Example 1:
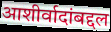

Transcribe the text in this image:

आशीर्वादांबद्दल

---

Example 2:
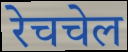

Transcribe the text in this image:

रेचचेल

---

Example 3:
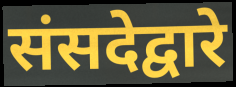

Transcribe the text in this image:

संसदेद्वारे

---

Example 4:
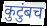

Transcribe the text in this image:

कुटुंबच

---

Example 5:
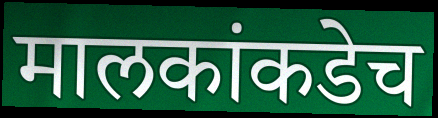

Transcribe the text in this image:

मालकांकडेच